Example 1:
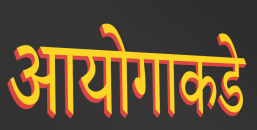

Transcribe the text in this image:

आयोगाकडे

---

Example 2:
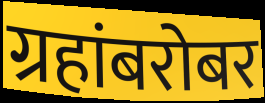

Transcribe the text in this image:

ग्रहांबरोबर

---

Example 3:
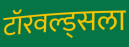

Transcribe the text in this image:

टॉरवल्ड्सला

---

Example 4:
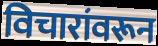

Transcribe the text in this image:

विचारांवरून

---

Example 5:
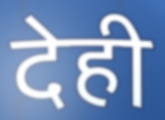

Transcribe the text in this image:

देही